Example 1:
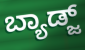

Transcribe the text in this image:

ಬ್ಯಾಡ್ಜ್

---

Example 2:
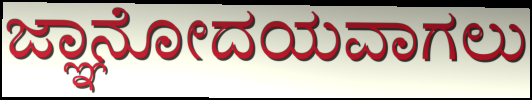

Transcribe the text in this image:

ಜ್ಞಾನೋದಯವಾಗಲು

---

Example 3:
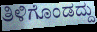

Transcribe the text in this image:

ತಿಳಿಗೊಂಡದ್ದು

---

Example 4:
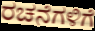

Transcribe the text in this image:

ರಚನೆಗಳಿಗೆ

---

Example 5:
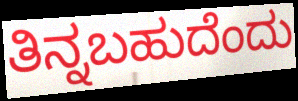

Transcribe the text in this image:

ತಿನ್ನಬಹುದೆಂದು